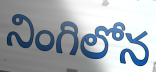
నింగిలోన